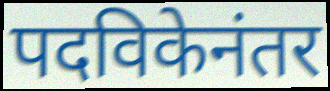
पदविकेनंतर